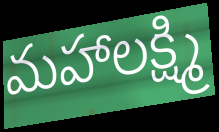
మహాలక్ష్మి